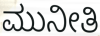
ಮುನೀತಿ